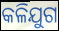
କଳିଯୁଗ